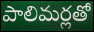
పాలిమర్లతో